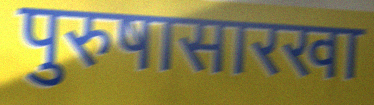
पुरुषासारखा